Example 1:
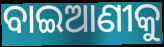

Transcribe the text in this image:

ବାଇଆଣୀକୁ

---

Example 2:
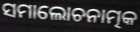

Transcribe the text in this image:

ସମାଲୋଚନାତ୍ମକ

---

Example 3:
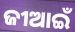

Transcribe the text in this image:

ଜୀଆଇଁ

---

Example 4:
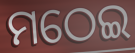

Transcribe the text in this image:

ମଠେଇ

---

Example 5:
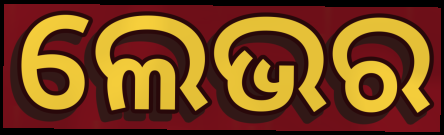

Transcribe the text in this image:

ଲେଭର